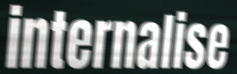
internalise